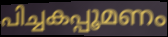
പിച്ചകപ്പൂമണം